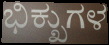
ಭಿಕ್ಖುಗಳ